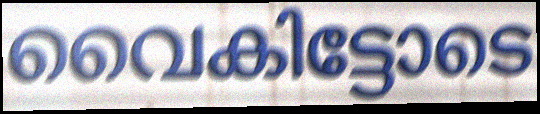
വൈകിട്ടോടെ